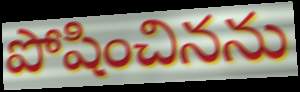
పోషించినను